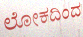
ಲೋಕದಿಂದ